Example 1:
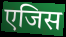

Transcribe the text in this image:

एजिस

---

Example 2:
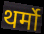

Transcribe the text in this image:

थर्मो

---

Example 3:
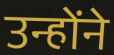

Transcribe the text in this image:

उन्‍होंने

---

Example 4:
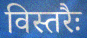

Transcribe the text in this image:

विस्तरैः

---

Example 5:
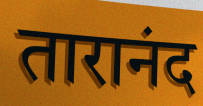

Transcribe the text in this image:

तारानंद